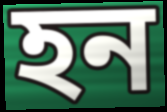
হন